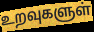
உறவுகளுள்